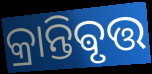
କ୍ରାନ୍ତିଵୃତ୍ତ